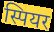
स्पियर